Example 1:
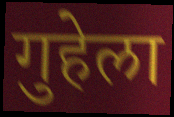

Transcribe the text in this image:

गुहेला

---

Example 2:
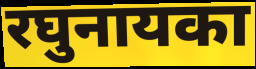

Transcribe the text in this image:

रघुनायका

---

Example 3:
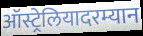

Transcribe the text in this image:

ऑस्ट्रेलियादरम्यान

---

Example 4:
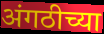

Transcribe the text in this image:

अंगठीच्या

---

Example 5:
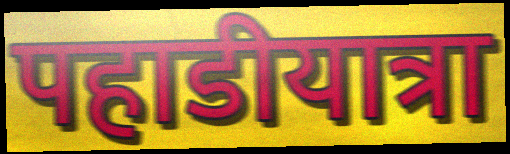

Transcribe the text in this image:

पहाडीयात्रा